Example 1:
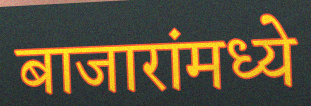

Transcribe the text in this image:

बाजारांमध्ये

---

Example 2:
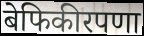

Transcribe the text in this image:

बेफिकीरपणा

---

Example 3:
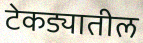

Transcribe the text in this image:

टेकड्यातील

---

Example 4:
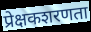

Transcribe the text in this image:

प्रेक्षकशरणता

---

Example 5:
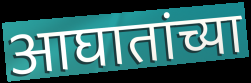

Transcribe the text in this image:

आघातांच्या